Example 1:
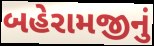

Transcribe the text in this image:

બહેરામજીનું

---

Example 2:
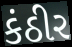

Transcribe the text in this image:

કંઠીર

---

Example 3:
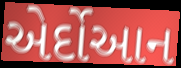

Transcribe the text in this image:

એર્દોઆન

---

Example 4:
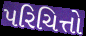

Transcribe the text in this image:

પરિચિત્તો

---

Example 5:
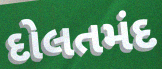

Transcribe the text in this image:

દોલતમંદ